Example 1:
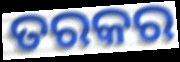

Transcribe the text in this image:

ତରକର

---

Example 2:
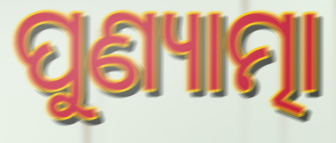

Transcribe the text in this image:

ପୁଣ୍ୟାତ୍ମା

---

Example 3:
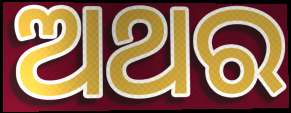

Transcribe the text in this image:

ଅଥର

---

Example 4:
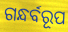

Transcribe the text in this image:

ଗନ୍ଧର୍ବରୂପ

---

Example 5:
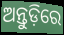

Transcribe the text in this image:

ଅନ୍ତୁଡ଼ିରେ